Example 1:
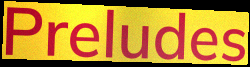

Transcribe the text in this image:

Preludes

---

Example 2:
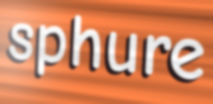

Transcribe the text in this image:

sphure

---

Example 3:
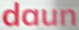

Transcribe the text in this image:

daun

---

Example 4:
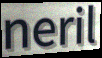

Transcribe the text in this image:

neril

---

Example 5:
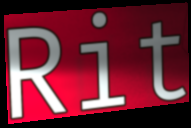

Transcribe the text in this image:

Rit